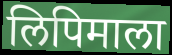
लिपिमाला